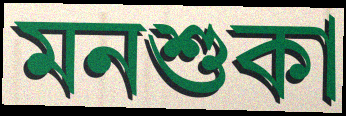
মনশুকা